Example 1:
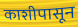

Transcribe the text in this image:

काशीपासून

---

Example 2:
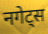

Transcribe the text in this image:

नगेट्स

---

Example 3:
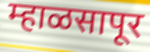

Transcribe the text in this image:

म्हाळसापूर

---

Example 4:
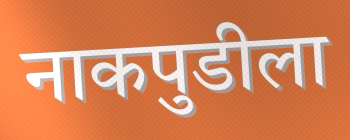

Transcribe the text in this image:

नाकपुडीला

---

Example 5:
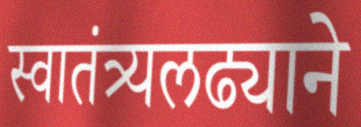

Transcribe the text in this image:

स्वातंत्र्यलढ्याने